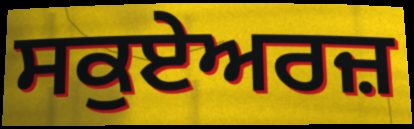
ਸਕੁਏਅਰਜ਼